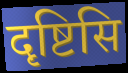
दृष्टिसि